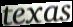
texas